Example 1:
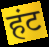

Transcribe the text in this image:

हंट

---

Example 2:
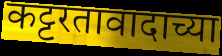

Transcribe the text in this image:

कट्टरतावादाच्या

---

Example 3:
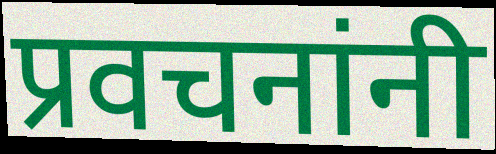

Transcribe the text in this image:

प्रवचनांनी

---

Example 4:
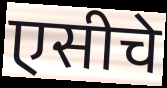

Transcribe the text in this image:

एसीचे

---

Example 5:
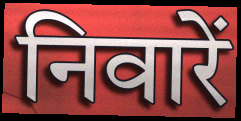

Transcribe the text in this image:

निवारें